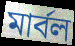
মাৰ্বল